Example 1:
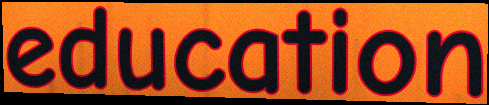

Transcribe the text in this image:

education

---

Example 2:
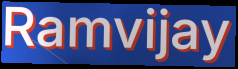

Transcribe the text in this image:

Ramvijay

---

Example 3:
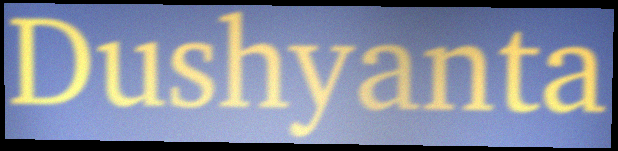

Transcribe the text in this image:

Dushyanta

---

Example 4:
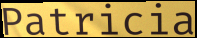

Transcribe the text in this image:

Patricia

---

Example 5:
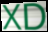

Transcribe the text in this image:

XD